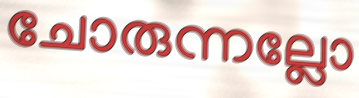
ചോരുന്നല്ലോ